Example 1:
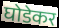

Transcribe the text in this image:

घोडेकर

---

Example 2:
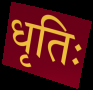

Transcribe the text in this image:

धृतिः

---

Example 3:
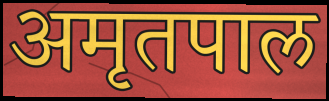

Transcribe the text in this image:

अमृतपाल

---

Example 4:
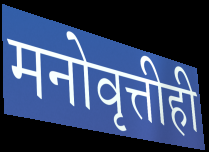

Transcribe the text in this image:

मनोवृत्तीही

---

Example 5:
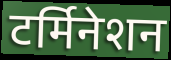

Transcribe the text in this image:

टर्मिनेशन